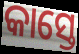
କାସ୍ତେ